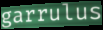
garrulus